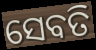
ସେବତି